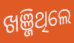
ଖଞ୍ଜିଥିଲେ